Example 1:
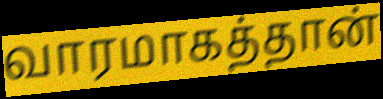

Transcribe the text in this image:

வாரமாகத்தான்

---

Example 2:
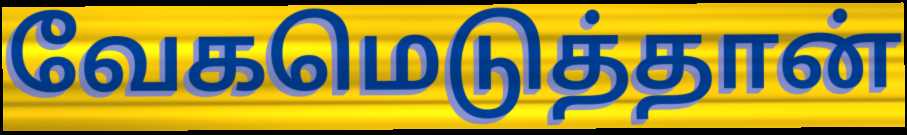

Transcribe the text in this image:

வேகமெடுத்தான்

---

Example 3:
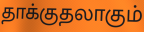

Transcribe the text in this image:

தாக்குதலாகும்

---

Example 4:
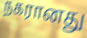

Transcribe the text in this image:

நகரானது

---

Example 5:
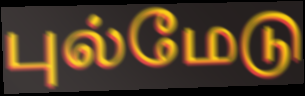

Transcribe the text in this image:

புல்மேடு